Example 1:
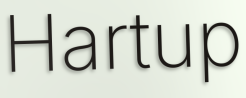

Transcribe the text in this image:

Hartup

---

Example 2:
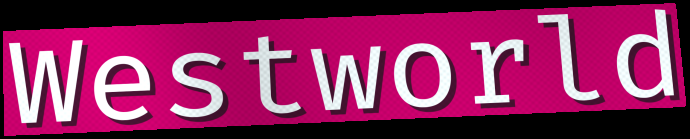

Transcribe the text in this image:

Westworld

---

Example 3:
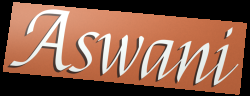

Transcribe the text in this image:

Aswani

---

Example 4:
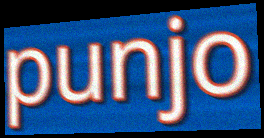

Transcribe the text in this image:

punjo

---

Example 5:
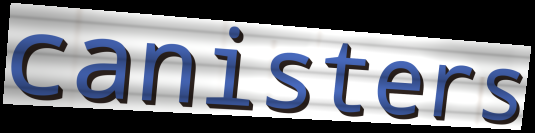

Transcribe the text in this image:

canisters